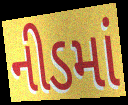
નીડમાં